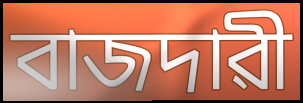
বাজদাৱী